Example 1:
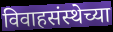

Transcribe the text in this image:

विवाहसंस्थेच्या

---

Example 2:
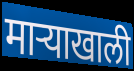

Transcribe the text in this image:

माऱ्याखाली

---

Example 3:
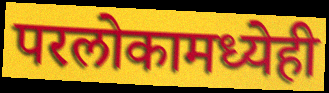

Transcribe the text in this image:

परलोकामध्येही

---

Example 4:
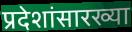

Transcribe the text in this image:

प्रदेशांसारख्या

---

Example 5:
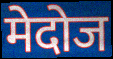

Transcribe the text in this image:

मेदोज